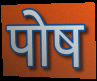
पोष